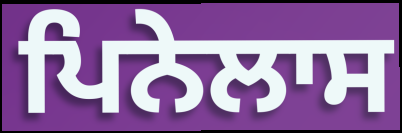
ਪਿਨੇਲਾਸ